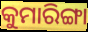
କୁମାରିଙ୍ଗା